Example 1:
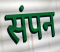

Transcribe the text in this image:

संपन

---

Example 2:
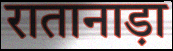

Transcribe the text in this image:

रातानाड़ा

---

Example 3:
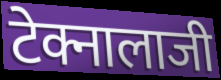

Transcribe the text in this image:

टेक्नालाजी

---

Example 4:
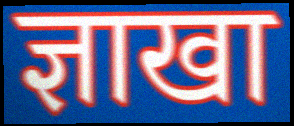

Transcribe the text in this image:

ज्ञाखा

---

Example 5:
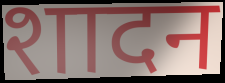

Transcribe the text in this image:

शादन